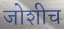
जोशीच